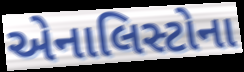
એનાલિસ્ટોના